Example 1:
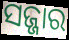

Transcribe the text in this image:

ସଜ୍ଜାର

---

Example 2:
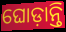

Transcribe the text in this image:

ଘୋଡ଼ାନ୍ତି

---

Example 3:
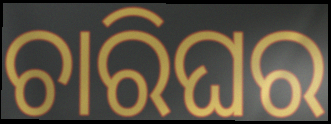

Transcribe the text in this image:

ଚାରିଘର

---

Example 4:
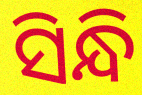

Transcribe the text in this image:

ସିନ୍ଧି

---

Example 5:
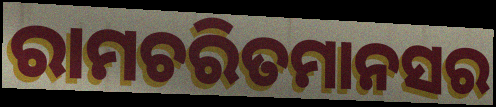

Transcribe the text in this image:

ରାମଚରିତମାନସର